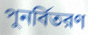
পুনর্বিতরণ